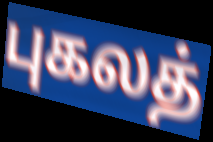
புகலத்